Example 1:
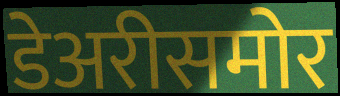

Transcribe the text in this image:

डेअरीसमोर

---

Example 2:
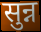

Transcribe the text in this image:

सुन्न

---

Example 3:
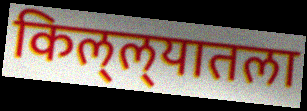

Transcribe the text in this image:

किल्ल्यातला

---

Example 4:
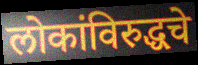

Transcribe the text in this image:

लोकांविरुद्धचे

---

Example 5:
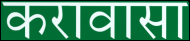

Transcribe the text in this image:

करावासा